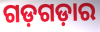
ଗଡ଼ଗଡ଼ାର